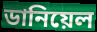
ডানিয়েল